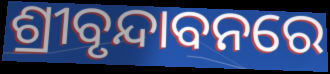
ଶ୍ରୀବୃନ୍ଦାବନରେ